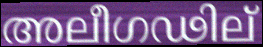
അലീഗഢില്